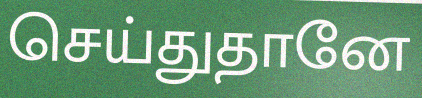
செய்துதானே